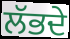
ਲੱਭਦੇ